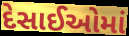
દેસાઈઓમાં